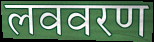
लववरण